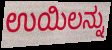
ಉಯಿಲನ್ನು